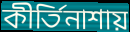
কীর্তিনাশায়